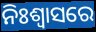
ନିଃଶ୍ଵାସରେ